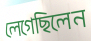
লেগেছিলেন